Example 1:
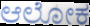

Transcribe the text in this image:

ಆಲೋಕ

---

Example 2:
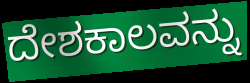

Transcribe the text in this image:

ದೇಶಕಾಲವನ್ನು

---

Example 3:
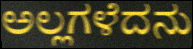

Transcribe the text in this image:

ಅಲ್ಲಗಳೆದನು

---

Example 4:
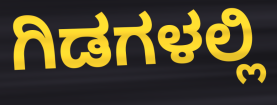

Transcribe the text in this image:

ಗಿಡಗಳಲ್ಲಿ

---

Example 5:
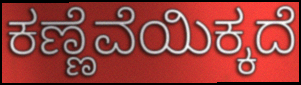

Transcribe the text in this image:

ಕಣ್ಣೆವೆಯಿಕ್ಕದೆ